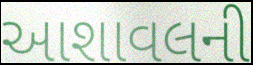
આશાવલની